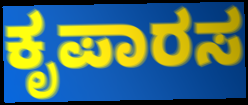
ಕೃಪಾರಸ